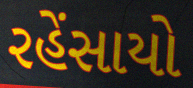
રહેંસાયો